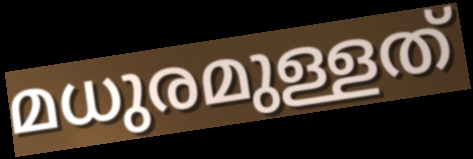
മധുരമുള്ളത്